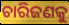
ଚାରିଜଣକୁ